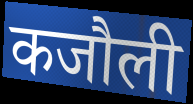
कजौली